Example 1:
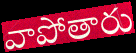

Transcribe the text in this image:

వాపోతారు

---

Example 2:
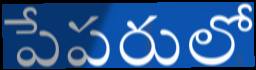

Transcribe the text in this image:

పేపరులో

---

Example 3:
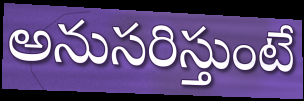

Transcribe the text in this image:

అనుసరిస్తుంటే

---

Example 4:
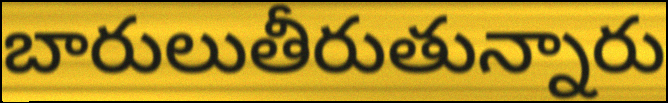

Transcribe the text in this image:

బారులుతీరుతున్నారు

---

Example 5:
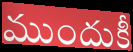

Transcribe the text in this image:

ముందుకీ